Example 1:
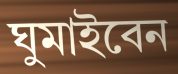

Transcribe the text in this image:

ঘুমাইবেন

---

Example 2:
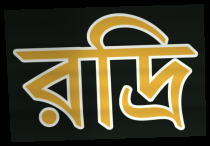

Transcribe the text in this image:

রদ্রি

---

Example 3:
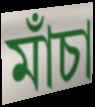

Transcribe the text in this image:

মাঁচা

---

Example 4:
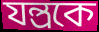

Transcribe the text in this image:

যন্ত্রকে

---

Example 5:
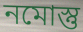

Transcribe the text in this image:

নমোস্তু